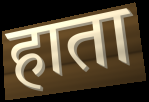
हाता